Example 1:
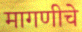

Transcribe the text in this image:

मागणीचे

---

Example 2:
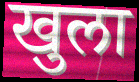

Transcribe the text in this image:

खुला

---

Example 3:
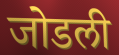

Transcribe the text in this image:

जोडली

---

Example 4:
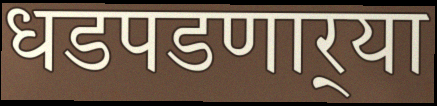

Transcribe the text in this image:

धडपडणार्या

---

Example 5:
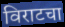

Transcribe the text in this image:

विराटचा